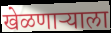
खेळणाऱ्याला